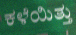
ಕಳೆಯಿತ್ತು